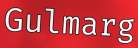
Gulmarg